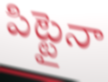
పిట్టైనా